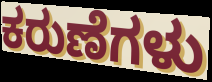
ಕರುಣೆಗಳು